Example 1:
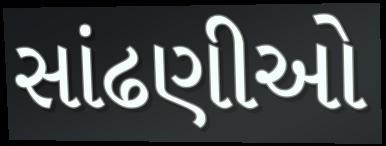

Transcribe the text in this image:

સાંઢણીઓ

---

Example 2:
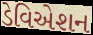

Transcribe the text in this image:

ડેવિએશન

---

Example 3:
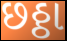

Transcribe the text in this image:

છઠ્ઠા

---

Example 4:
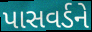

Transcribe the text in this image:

પાસવર્ડને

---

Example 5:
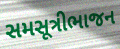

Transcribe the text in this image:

સમસૂત્રીભાજન